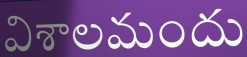
విశాలమందు